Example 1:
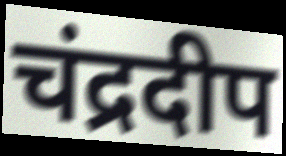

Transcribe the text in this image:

चंद्रदीप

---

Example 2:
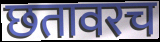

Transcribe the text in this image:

छतावरच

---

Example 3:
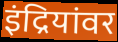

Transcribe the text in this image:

इंद्रियांवर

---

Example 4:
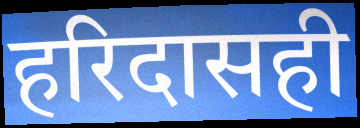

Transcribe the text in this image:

हरिदासही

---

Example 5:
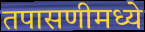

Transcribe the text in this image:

तपासणीमध्ये